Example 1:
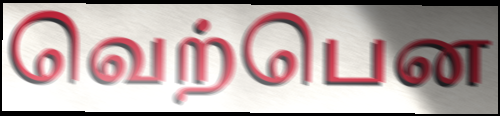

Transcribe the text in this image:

வெற்பென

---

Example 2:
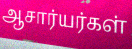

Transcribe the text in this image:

ஆசார்யர்கள்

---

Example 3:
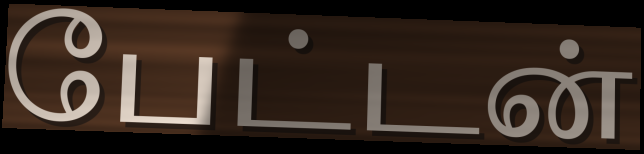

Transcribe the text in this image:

பேட்டன்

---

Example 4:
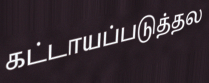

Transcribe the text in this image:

கட்டாயப்படுத்தல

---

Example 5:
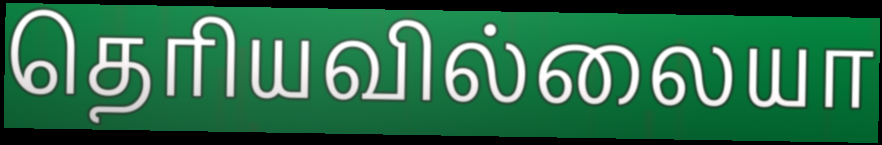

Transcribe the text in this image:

தெரியவில்லையா